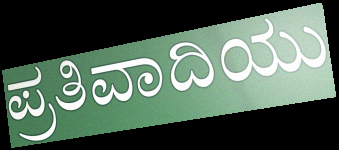
ಪ್ರತಿವಾದಿಯು